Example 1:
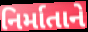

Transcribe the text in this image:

નિર્માતાને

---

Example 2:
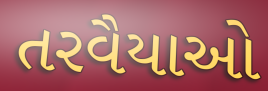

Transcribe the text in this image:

તરવૈયાઓ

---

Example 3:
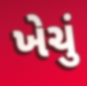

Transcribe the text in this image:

ખેચું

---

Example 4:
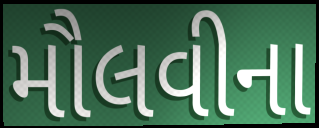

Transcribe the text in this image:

મૌલવીના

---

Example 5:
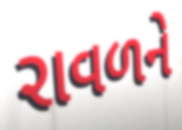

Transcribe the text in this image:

રાવળને